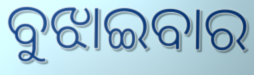
ବୁଝାଇବାର